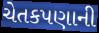
ચેતકપણાની